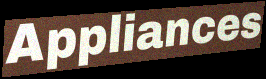
Appliances